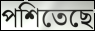
পশিতেছে